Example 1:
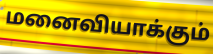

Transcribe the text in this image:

மனைவியாக்கும்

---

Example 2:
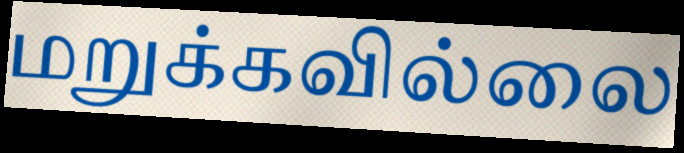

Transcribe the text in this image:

மறுக்கவில்லை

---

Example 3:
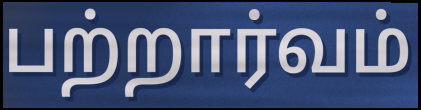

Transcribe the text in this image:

பற்றார்வம்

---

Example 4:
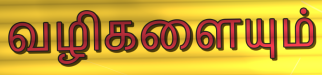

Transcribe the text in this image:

வழிகளையும்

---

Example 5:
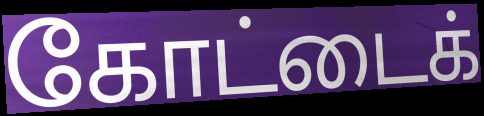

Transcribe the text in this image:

கோட்டைக்